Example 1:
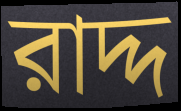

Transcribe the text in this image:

রাদ্দ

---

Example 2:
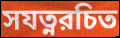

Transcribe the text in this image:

সযত্নরচিত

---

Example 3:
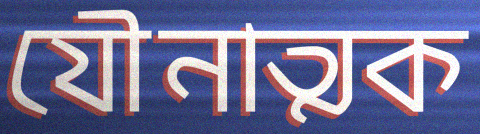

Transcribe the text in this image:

যৌনাত্মক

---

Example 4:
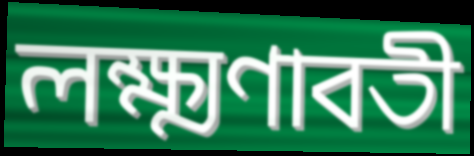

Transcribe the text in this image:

লক্ষ্মণাবতী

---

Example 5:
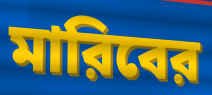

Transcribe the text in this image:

মারিবের